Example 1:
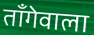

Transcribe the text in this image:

ताँगेवाला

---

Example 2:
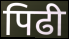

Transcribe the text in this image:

पिढी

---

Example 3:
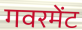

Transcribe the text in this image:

गवरमेंट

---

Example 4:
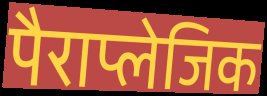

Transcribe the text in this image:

पैराप्लेजिक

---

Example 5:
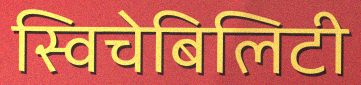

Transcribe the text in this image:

स्विचेबिलिटी